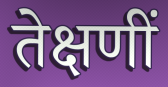
तेक्षणीं